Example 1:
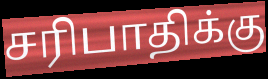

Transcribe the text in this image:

சரிபாதிக்கு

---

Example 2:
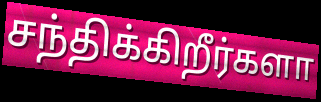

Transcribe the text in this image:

சந்திக்கிறீர்களா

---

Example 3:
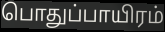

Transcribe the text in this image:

பொதுப்பாயிரம்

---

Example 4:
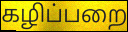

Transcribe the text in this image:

கழிப்பறை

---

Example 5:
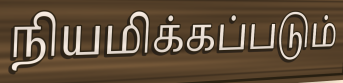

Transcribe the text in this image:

நியமிக்கப்படும்